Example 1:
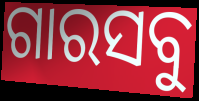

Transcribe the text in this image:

ଗାରସବୁ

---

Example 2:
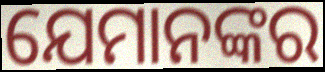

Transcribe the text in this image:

ଯେମାନଙ୍କର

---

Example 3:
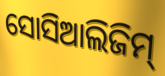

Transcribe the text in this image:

ସୋସିଆଲିଜିମ୍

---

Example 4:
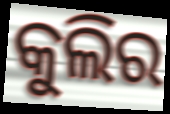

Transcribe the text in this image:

କୁଲିର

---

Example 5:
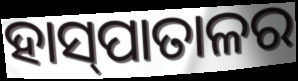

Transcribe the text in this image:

ହାସ୍‍ପାତାଳର